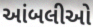
આંબલીઓ